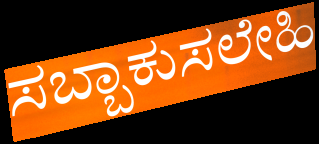
ಸಬ್ಬಾಕುಸಲೇಹಿ